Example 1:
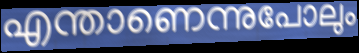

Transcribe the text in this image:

എന്താണെന്നുപോലും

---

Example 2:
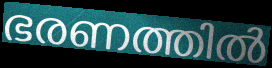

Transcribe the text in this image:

ഭരണത്തിൽ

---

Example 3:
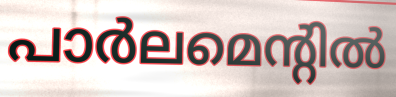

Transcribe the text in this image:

പാർലമെന്റിൽ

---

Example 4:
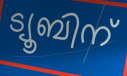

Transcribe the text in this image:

ട്യൂബിന്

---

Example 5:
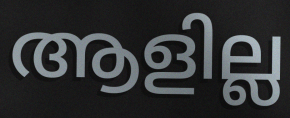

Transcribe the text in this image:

ആളില്ല